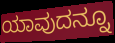
ಯಾವುದನ್ನೂ